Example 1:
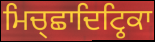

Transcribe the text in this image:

ਮਿਚ੍ਛਾਦਿਟ੍ਠਿਕਾ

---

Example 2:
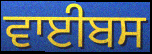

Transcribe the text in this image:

ਵਾਈਬਸ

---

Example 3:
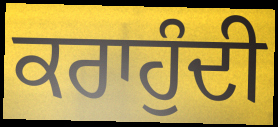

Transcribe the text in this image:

ਕਰਾਹੁੰਦੀ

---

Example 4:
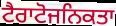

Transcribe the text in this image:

ਟੈਰਾਟੋਜਨਿਕਤਾ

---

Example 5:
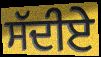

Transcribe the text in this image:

ਸੱਦੀਏ